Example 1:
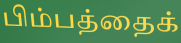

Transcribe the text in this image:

பிம்பத்தைக்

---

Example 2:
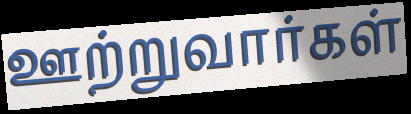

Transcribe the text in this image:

ஊற்றுவார்கள்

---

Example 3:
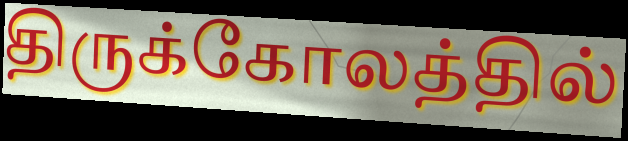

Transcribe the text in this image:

திருக்கோலத்தில்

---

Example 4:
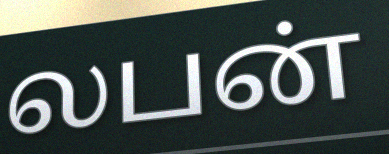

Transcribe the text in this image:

லபன்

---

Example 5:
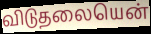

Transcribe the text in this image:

விடுதலையென்